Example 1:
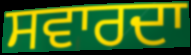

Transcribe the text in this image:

ਸਵਾਰਦਾ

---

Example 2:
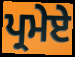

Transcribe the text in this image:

ਪ੍ਰਮੇਏ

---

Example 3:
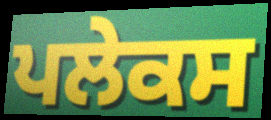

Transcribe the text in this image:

ਪਲੇਕਸ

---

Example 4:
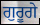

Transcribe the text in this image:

ਗੁਰੂਗੇ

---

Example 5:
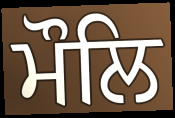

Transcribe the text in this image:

ਮੌਲਿ